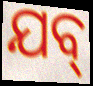
ଯବ୍